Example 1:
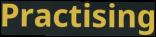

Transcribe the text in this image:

Practising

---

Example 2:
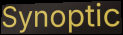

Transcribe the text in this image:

Synoptic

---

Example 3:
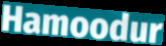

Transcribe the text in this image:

Hamoodur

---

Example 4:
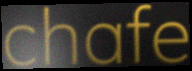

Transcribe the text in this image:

chafe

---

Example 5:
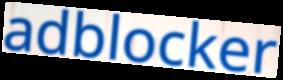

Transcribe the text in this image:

adblocker